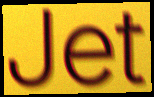
Jet